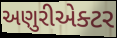
અણુરીએક્ટર